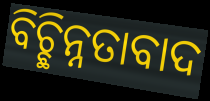
ବିଚ୍ଛିନ୍ନତାବାଦ